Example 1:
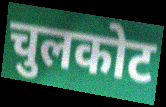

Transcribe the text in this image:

चुलकोट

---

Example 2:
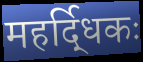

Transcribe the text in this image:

महर्द्धिकः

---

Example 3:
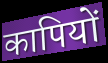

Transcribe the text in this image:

कापियों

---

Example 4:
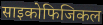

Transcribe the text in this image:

साइकोफिजिकल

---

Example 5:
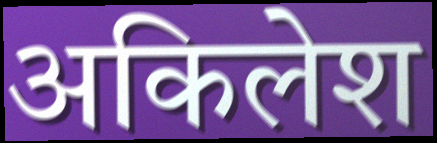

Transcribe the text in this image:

अकिलेश